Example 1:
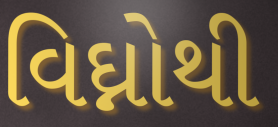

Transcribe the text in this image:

વિઘ્નોથી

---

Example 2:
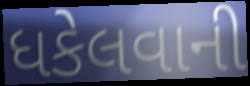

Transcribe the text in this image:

ધકેલવાની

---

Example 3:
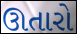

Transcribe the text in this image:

ઊતારો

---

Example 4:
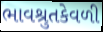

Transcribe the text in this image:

ભાવશ્રુતકેવળી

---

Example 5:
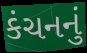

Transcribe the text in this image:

કંચનનું